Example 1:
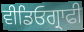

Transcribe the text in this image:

ਵੀਡਿਓਗ੍ਰਾਫੀ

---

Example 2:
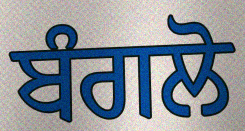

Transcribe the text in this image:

ਬੰਗਲੋ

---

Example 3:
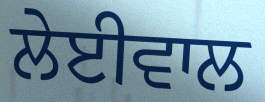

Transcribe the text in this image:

ਲੇਈਵਾਲ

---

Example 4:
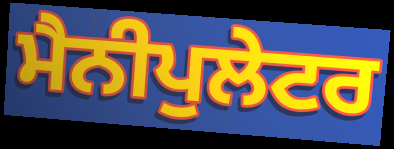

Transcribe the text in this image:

ਮੈਨੀਪੁਲੇਟਰ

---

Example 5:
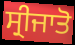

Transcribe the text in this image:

ਸ੍ਰੀਜਾਤੋ